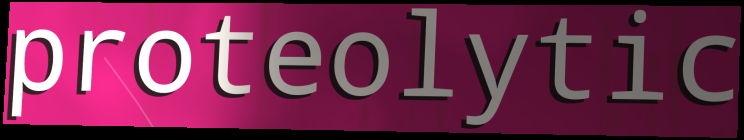
proteolytic